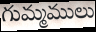
గుమ్మములు